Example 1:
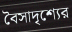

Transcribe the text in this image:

বৈসাদৃশ্যের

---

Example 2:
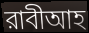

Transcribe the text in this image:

রাবীআহ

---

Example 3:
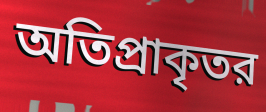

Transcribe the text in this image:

অতিপ্রাকৃতর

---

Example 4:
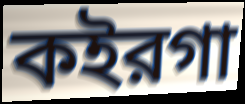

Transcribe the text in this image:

কইরগা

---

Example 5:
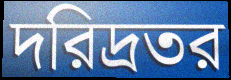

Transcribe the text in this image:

দরিদ্রতর